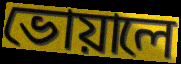
ভোয়ালে